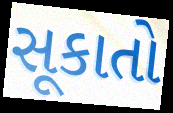
સૂકાતો